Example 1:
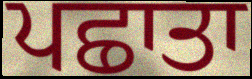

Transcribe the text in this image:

ਪਛਾਤਾ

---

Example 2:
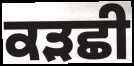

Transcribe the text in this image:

ਕੜਛੀ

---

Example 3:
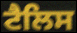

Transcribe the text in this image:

ਟੈਲਿਸ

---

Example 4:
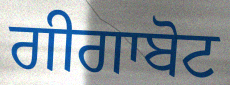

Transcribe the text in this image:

ਗੀਗਾਬੋਟ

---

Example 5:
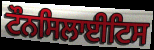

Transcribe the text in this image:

ਟੌਨਸਿਲਾਈਟਿਸ